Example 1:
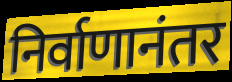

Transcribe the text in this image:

निर्वाणानंतर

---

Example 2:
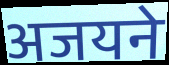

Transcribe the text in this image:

अजयने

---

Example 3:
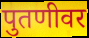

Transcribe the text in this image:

पुतणीवर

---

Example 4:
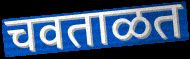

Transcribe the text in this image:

चवताळत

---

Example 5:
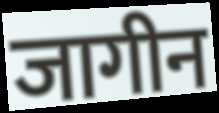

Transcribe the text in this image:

जागीन